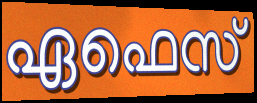
ഏഫെസ്